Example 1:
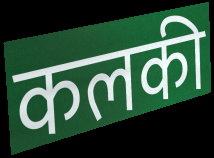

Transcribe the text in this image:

कलकी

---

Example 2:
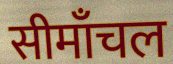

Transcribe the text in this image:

सीमाँचल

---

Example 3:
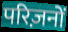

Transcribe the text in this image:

परिज़नों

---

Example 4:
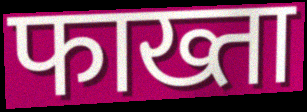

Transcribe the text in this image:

फाख्ता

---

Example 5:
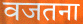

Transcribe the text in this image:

वजतना